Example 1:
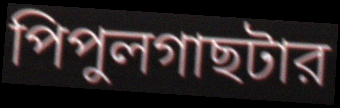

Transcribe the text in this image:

পিপুলগাছটার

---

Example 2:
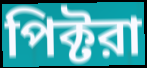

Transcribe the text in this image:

পিক্টরা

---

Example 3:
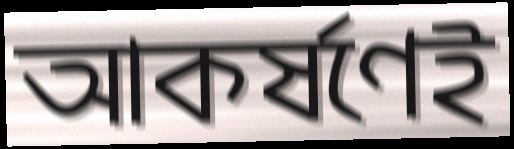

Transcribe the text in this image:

আকর্ষণেই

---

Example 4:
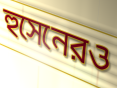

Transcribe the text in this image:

হুসেনেরও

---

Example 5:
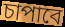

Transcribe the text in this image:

চাপাবে